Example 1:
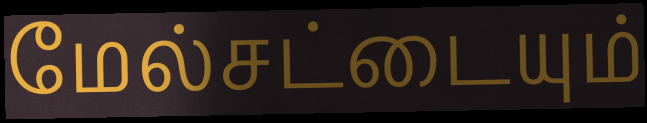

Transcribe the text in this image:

மேல்சட்டையும்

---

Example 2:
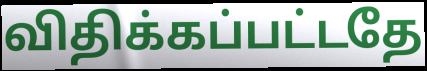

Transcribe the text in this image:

விதிக்கப்பட்டதே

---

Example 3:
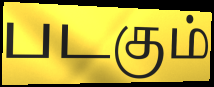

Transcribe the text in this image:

படகும்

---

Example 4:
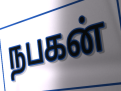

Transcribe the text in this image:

நபகன்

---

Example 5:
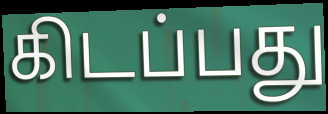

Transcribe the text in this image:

கிடப்பது